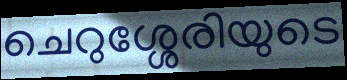
ചെറുശ്ശേരിയുടെ